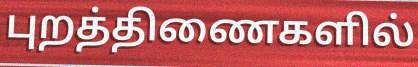
புறத்திணைகளில்